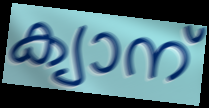
ക്യാന്